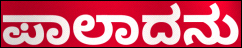
ಪಾಲಾದನು